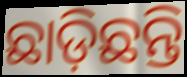
ଛାଡ଼ିଛନ୍ତି